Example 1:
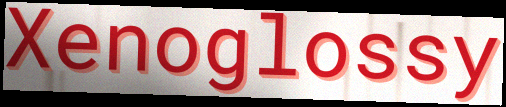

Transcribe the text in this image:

Xenoglossy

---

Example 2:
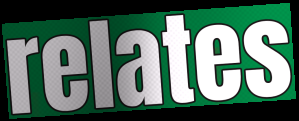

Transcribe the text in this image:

relates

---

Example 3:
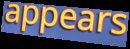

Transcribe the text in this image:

appears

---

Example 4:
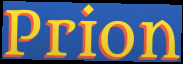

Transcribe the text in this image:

Prion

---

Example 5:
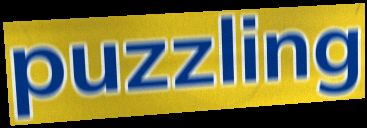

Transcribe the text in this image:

puzzling